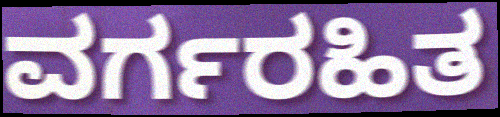
ವರ್ಗರಹಿತ